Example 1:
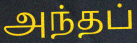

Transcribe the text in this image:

அந்தப்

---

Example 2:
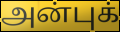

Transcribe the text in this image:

அன்புக்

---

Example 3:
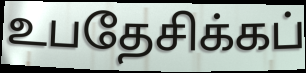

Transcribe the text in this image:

உபதேசிக்கப்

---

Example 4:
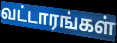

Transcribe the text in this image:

வட்டாரங்கள்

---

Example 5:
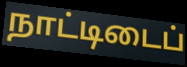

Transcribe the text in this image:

நாட்டிடைப்